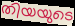
തിയയുടെ